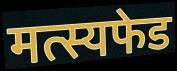
मत्स्यफेड